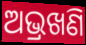
ଅଭ୍ରଖଣି